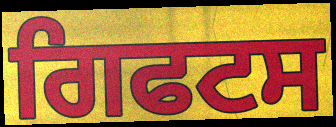
ਗਿਫਟਸ